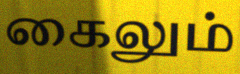
கைலும்